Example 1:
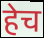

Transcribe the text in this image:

हेच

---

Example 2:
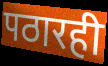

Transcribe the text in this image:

पठारही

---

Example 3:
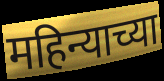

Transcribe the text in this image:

महिन्याच्या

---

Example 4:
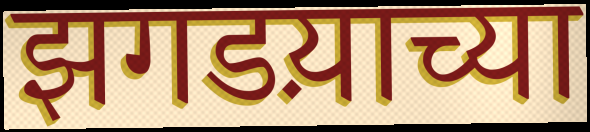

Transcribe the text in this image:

झगडय़ाच्या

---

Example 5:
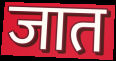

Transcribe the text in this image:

जात